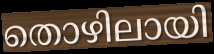
തൊഴിലായി